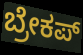
ಬ್ರೇಕಪ್